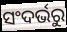
ସଂଦର୍ଭରୁ